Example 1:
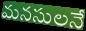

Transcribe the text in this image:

మనసులనే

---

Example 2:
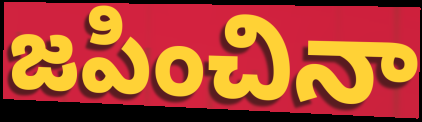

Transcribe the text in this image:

జపించినా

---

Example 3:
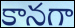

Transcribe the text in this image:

కానగా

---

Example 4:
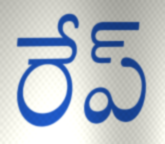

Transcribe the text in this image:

రేప్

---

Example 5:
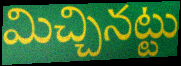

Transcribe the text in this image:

మిచ్చినట్టు